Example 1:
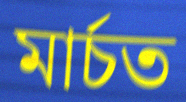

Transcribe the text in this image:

মাৰ্চত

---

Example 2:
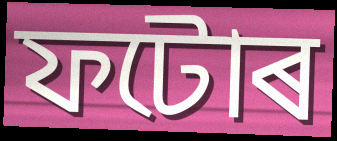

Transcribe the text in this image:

ফটোৰ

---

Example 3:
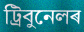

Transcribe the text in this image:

ট্ৰিবুনেলৰ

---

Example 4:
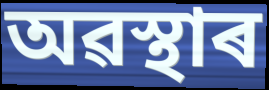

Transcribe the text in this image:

অৱস্থাৰ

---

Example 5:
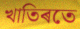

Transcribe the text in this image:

খাতিৰতে